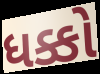
ધક્કો